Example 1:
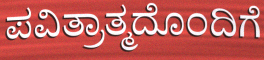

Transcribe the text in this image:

ಪವಿತ್ರಾತ್ಮದೊಂದಿಗೆ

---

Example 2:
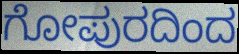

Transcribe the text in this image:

ಗೋಪುರದಿಂದ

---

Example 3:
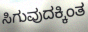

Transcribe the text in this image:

ಸಿಗುವುದಕ್ಕಿಂತ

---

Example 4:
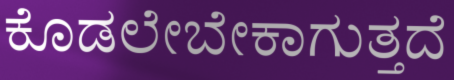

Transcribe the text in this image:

ಕೊಡಲೇಬೇಕಾಗುತ್ತದೆ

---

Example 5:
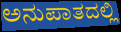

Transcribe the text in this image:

ಅನುಪಾತದಲ್ಲಿ